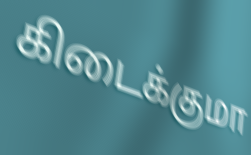
கிடைக்குமா